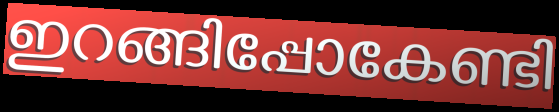
ഇറങ്ങിപ്പോകേണ്ടി